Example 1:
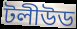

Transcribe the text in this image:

টলীউড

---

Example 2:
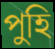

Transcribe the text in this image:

পুহি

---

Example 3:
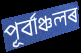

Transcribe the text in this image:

পূৰ্বাঞ্চলৰ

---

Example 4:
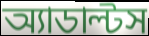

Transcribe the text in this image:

অ্যাডাল্টস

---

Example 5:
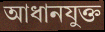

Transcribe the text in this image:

আধানযুক্ত